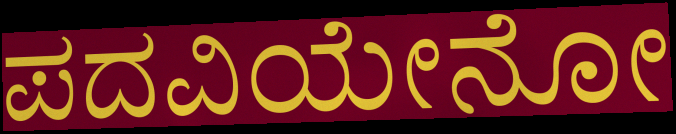
ಪದವಿಯೇನೋ